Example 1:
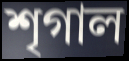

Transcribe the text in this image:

শৃগাল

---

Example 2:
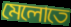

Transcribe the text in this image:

মেলোতে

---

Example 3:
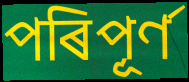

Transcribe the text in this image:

পৰিপূৰ্ণ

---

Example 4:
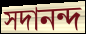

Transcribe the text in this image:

সদানন্দ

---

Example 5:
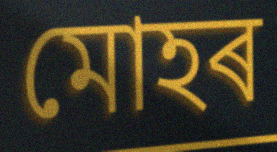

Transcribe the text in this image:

মোহৰ